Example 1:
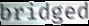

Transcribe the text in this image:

bridged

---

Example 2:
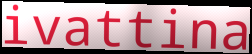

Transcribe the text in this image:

ivattina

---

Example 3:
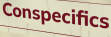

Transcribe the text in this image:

Conspecifics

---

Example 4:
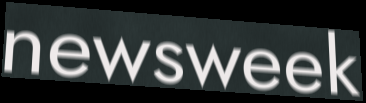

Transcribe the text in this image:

newsweek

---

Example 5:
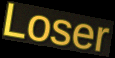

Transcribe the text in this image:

Loser